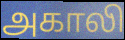
அகாலி